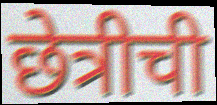
छेत्रीची